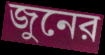
জুনের